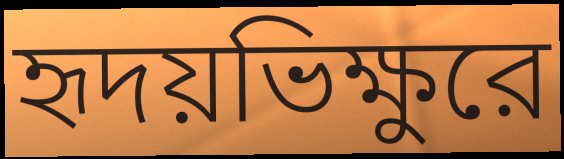
হৃদয়ভিক্ষুরে